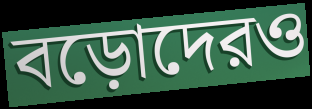
বড়োদেরও